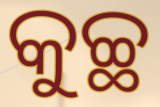
କୁଚ୍ଛ